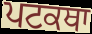
ਪਟਕਥਾ